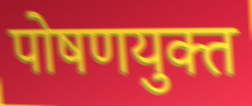
पोषणयुक्त